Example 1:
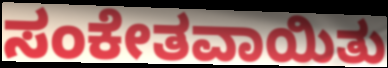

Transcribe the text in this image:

ಸಂಕೇತವಾಯಿತು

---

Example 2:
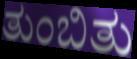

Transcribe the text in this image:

ತುಂಬಿತು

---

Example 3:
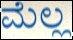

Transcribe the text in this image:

ಮೆಲ್ಲ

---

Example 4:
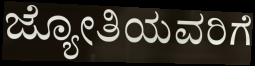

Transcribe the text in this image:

ಜ್ಯೋತಿಯವರಿಗೆ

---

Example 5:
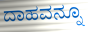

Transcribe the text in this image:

ದಾಹವನ್ನೂ